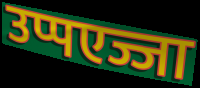
उप्पएज्जा